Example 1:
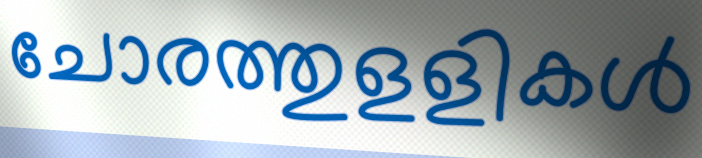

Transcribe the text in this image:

ചോരത്തുളളികൾ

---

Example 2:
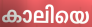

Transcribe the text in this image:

കാലിയെ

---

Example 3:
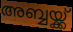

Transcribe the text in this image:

അബ്ബയ്ക്ക്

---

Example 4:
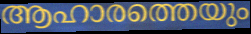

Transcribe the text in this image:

ആഹാരത്തെയും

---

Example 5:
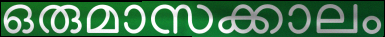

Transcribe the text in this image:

ഒരുമാസക്കാലം